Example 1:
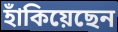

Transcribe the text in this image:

হাঁকিয়েছেন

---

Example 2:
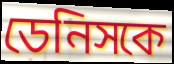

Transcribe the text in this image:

ডেনিসকে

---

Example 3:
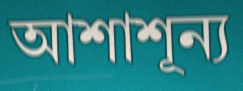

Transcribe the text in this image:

আশাশূন্য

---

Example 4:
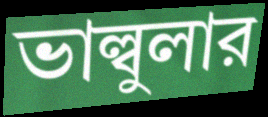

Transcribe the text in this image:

ভাল্বুলার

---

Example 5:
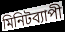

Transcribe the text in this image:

মিনিটব্যাপী